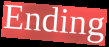
Ending